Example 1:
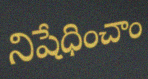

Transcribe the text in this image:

నిషేధించాం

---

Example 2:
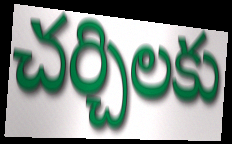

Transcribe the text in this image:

చర్చిలకు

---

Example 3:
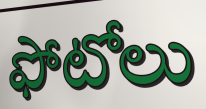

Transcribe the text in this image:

ఫోటోలు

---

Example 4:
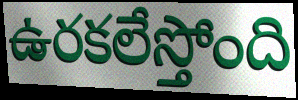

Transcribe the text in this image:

ఉరకలేస్తోంది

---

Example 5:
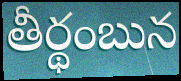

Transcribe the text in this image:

తీర్థంబున